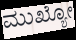
ಮುಖ್ಯೋ